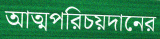
আত্মপরিচয়দানের